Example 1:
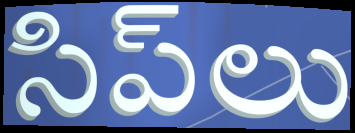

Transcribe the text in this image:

సిప్‌లు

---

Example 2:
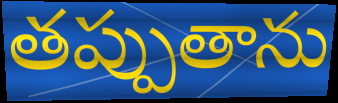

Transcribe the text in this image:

తప్పుతాను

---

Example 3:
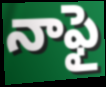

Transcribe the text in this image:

నాఫై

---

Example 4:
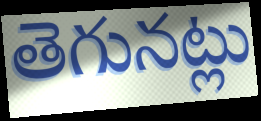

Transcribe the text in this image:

తెగునట్లు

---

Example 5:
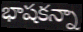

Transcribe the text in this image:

భాషకన్నా